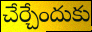
చేర్చేందుకు